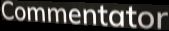
Commentator